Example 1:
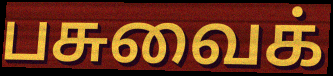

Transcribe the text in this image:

பசுவைக்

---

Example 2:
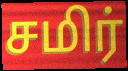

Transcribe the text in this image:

சமிர்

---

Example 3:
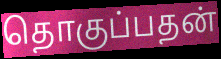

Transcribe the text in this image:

தொகுப்பதன்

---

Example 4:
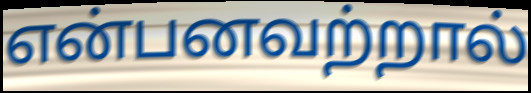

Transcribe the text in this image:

என்பனவற்றால்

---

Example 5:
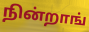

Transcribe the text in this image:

நின்றாங்